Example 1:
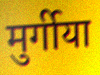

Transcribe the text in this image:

मुर्गीया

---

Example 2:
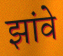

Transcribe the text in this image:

झांवे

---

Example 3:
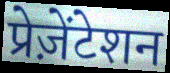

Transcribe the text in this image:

प्रेज़ेंटेशन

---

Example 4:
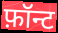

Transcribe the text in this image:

फ़ॉन्ट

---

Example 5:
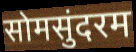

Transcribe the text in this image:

सोमसुंदरम